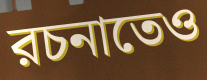
রচনাতেও